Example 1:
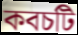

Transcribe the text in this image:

কবচটি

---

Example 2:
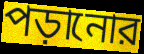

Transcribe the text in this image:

পড়ানোর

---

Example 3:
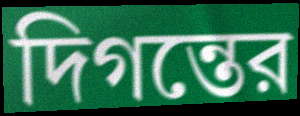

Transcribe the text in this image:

দিগন্তের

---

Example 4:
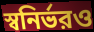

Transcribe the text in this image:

স্বনির্ভরও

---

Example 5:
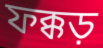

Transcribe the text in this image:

ফক্কড়